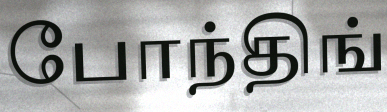
போந்திங்